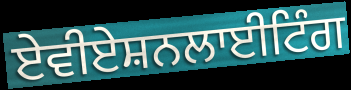
ਏਵੀਏਸ਼ਨਲਾਈਟਿੰਗ